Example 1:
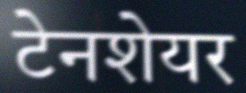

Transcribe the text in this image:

टेनशेयर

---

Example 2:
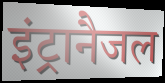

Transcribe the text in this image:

इंट्रानैजल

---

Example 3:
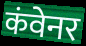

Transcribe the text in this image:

कंवेनर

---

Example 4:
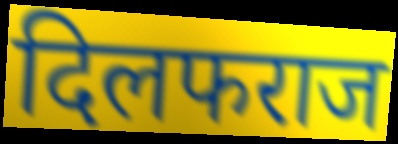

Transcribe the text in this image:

दिलफराज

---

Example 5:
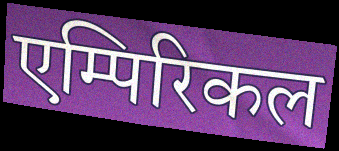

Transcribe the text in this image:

एम्पिरिकल